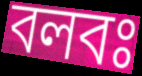
বলবঃ